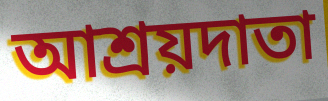
আশ্রয়দাতা